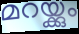
മറയ്ക്കും